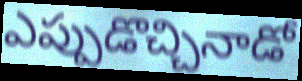
ఎప్పుడొచ్చినాడో